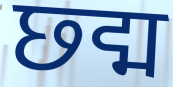
छ्द्म